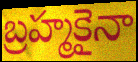
బ్రహ్మకైనా